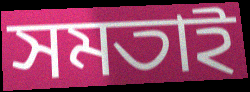
সমতাই